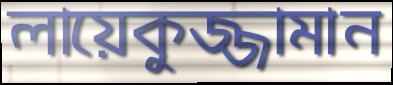
লায়েকুজ্জামান